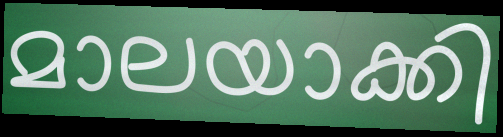
മാലയാക്കി